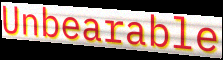
Unbearable